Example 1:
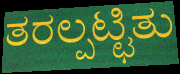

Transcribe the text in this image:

ತರಲ್ಪಟ್ಟಿತು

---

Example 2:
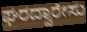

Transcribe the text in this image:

ಘರದ್ವಾರೇಸು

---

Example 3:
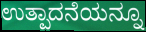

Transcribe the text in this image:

ಉತ್ಪಾದನೆಯನ್ನೂ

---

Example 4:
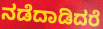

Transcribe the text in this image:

ನಡೆದಾಡಿದರೆ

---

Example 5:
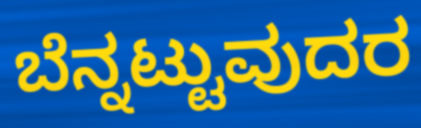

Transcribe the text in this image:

ಬೆನ್ನಟ್ಟುವುದರ